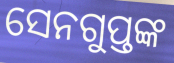
ସେନଗୁପ୍ତଙ୍କ